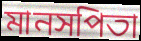
মানসপিতা